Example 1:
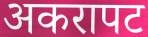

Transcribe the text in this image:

अकरापट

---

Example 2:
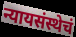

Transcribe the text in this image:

न्यायसंस्थेचं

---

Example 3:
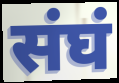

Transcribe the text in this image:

संघं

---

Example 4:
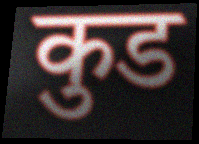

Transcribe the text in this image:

कुड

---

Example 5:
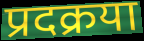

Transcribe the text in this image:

प्रदक्रया